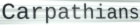
Carpathians